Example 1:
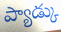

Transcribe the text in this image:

ప్యాడ్కు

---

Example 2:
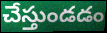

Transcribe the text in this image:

చేస్తుండడం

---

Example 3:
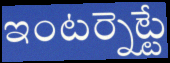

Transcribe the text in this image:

ఇంటర్నెట్టే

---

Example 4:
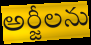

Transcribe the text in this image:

అర్జీలను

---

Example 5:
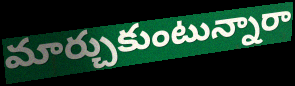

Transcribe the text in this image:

మార్చుకుంటున్నారా